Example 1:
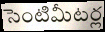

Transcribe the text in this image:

సెంటిమీటర్ల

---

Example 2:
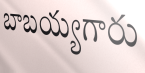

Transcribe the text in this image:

బాబయ్యగారు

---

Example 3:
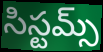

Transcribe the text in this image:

సిస్టమ్స్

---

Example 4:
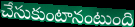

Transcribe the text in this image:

చేసుకుంటానంటుంది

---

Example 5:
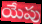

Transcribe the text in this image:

యేపు